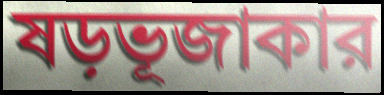
ষড়ভূজাকার